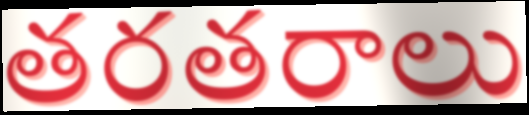
తరతరాలు